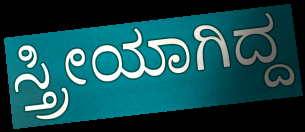
ಸ್ತ್ರೀಯಾಗಿದ್ದ